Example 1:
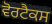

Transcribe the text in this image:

ਵੋਰਟੈਕਸ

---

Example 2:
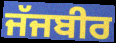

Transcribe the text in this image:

ਜੱਜਬੀਰ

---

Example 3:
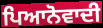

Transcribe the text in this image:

ਪਿਆਨੋਵਾਦੀ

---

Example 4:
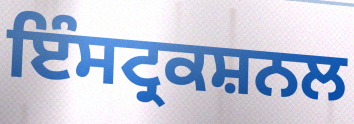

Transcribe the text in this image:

ਇੰਸਟ੍ਰਕਸ਼ਨਲ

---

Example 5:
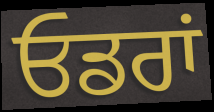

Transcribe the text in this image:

ਓਡਰਾਂ